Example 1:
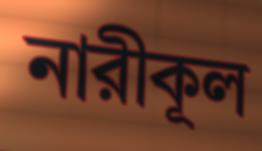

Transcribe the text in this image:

নারীকূল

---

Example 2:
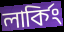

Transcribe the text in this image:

লার্কিং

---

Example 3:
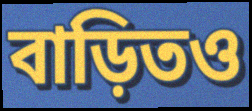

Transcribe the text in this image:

বাড়িতও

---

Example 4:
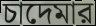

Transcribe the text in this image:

চাদেমার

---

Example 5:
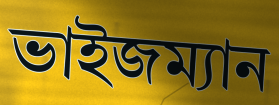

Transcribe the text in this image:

ভাইজম্যান